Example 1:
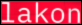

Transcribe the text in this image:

lakon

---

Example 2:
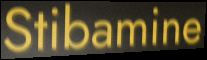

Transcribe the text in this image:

Stibamine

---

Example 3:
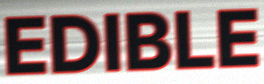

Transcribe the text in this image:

EDIBLE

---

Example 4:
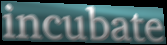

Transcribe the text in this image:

incubate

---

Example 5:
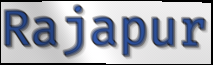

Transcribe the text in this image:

Rajapur